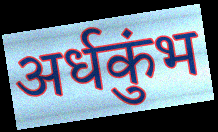
अर्धकुंभ